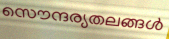
സൌന്ദര്യതലങ്ങൾ